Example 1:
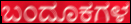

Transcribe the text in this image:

ಬಂದೂಕಗಳ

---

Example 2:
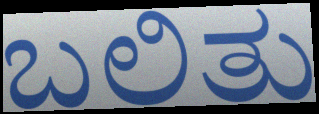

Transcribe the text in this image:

ಬಲಿತು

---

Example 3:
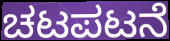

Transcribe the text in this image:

ಚಟಪಟನೆ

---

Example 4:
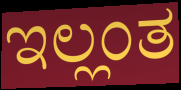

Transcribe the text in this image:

ಇಲ್ಲಂತ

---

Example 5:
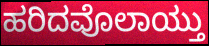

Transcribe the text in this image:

ಹರಿದವೊಲಾಯ್ತು